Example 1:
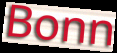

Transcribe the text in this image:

Bonn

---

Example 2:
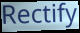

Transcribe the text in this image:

Rectify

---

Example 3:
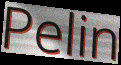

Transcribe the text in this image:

Pelin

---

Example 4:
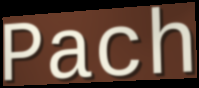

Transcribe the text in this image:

Pach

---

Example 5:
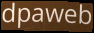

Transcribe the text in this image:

dpaweb